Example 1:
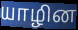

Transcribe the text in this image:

யாழின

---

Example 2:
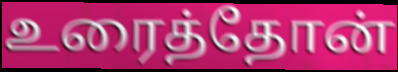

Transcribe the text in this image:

உரைத்தோன்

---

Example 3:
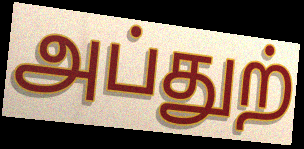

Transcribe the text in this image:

அப்துற்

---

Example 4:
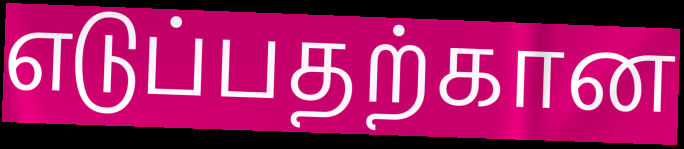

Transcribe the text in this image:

எடுப்பதற்கான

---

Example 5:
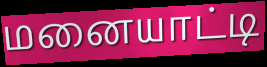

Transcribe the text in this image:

மனையாட்டி